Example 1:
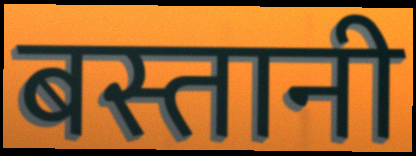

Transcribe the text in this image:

बस्तानी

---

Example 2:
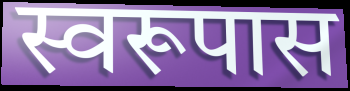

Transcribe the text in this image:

स्वरूपास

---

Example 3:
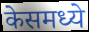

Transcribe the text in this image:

केसमध्ये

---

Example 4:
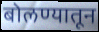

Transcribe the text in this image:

बोलण्यातून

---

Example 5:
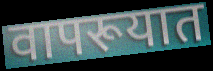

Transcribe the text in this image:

वापरूयात